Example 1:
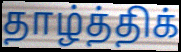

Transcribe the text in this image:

தாழ்த்திக்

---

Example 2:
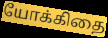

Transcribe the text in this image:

யோக்கிதை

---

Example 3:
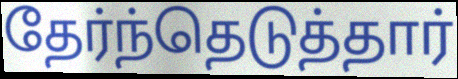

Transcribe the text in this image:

தேர்ந்தெடுத்தார்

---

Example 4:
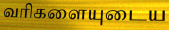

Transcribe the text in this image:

வரிகளையுடைய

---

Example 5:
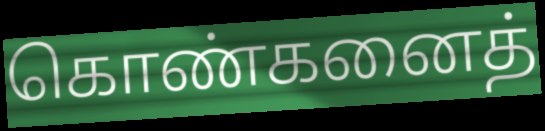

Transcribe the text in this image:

கொண்கனைத்